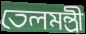
তেলমন্ত্রী